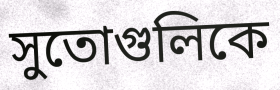
সুতোগুলিকে